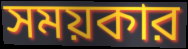
সময়কার